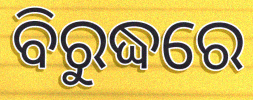
ବିରୁଦ୍ଧରେ